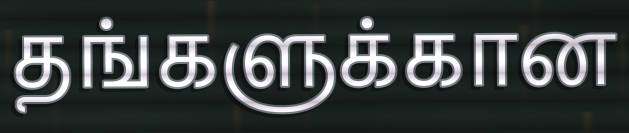
தங்களுக்கான